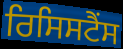
ਰਿਸਿਸਟੈਂਸ